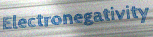
Electronegativity